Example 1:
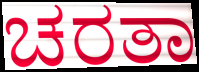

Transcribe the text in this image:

ಚರತಾ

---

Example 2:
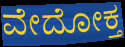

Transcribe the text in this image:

ವೇದೋಕ್ತ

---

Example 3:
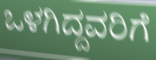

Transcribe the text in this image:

ಒಳಗಿದ್ದವರಿಗೆ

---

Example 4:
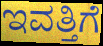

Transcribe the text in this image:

ಇವತ್ತಿಗೆ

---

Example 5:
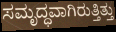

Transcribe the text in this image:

ಸಮೃದ್ಧವಾಗಿರುತ್ತಿತ್ತು